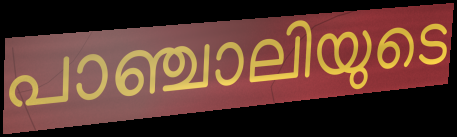
പാഞ്ചാലിയുടെ